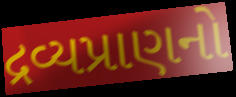
દ્રવ્યપ્રાણનો